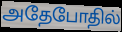
அதேபோதில்